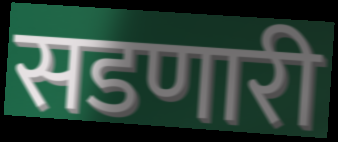
सडणारी